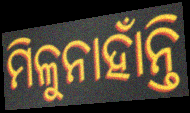
ମିଳୁନାହାଁନ୍ତି